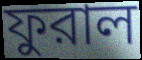
ফুরাল